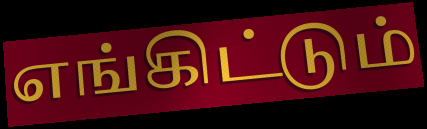
எங்கிட்டும்